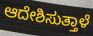
ಆದೇಶಿಸುತ್ತಾಳೆ